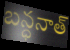
బన్ధనాత్